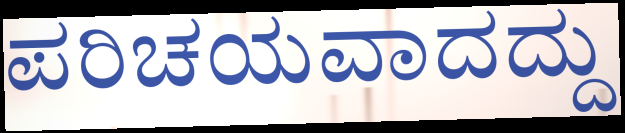
ಪರಿಚಯವಾದದ್ದು